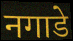
नगाडे